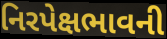
નિરપેક્ષભાવની